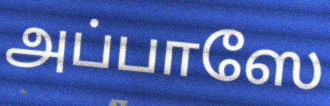
அப்பாஸே